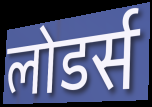
लोडर्स